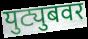
युट्युबवर